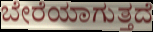
ಬೇರೆಯಾಗುತ್ತದೆ